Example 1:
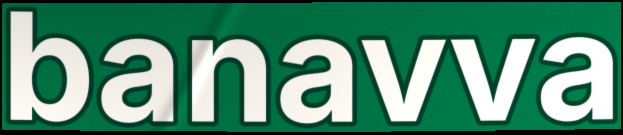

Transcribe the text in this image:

banavva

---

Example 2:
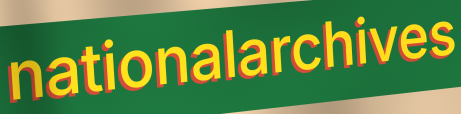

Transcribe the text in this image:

nationalarchives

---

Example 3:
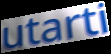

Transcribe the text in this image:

utarti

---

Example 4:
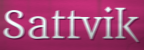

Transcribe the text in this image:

Sattvik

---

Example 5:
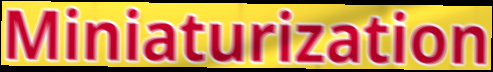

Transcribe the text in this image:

Miniaturization